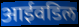
आईवडिल